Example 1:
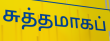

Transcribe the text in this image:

சுத்தமாகப்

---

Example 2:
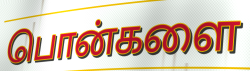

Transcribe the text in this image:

பொன்களை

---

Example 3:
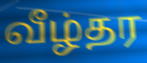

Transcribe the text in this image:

வீழ்தர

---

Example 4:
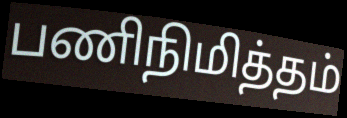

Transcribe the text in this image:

பணிநிமித்தம்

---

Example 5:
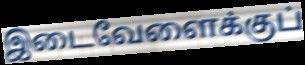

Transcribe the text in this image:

இடைவேளைக்குப்